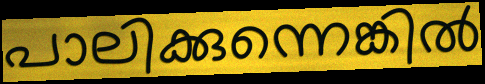
പാലിക്കുന്നെങ്കിൽ